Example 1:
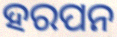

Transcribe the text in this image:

ହରପନ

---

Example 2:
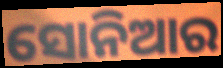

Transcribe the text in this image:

ସୋନିଆର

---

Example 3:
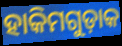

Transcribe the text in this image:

ହାକିମଗୁଡ଼ାକ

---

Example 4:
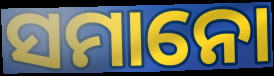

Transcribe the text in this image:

ସମାନୋ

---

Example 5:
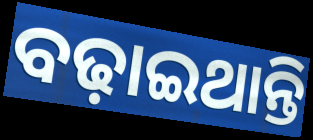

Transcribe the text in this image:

ବଢ଼ାଇଥାନ୍ତି